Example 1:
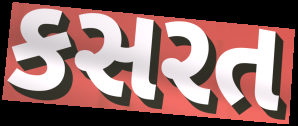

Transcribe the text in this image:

કસરત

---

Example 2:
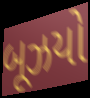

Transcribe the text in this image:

બૂઝયો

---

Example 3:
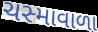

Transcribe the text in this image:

ચસ્માવાળા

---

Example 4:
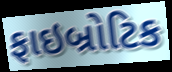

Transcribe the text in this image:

ફાઇબ્રોટિક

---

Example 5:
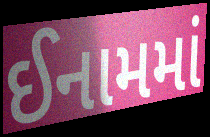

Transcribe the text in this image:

ઈનામમાં